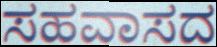
ಸಹವಾಸದ